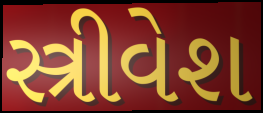
સ્ત્રીવેશ